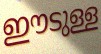
ഈടുള്ള